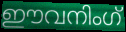
ഈവനിംഗ്